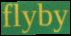
flyby